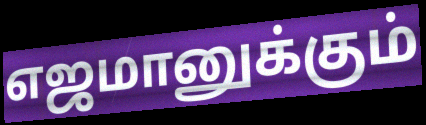
எஜமானுக்கும்